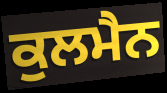
ਕੁਲਮੈਨ